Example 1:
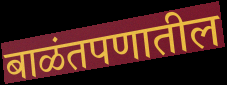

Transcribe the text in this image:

बाळंतपणातील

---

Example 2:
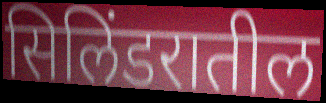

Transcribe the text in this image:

सिलिंडरातील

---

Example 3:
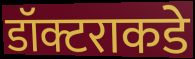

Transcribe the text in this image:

डॉक्टराकडे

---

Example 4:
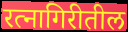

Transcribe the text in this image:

रत्नागिरीतील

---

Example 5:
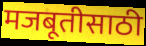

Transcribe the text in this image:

मजबूतीसाठी